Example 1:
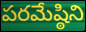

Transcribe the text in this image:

పరమేష్ఠిని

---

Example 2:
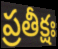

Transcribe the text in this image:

ప్రతీక్షః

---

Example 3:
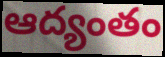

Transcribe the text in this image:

ఆద్యంతం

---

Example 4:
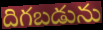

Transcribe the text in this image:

దిగబడును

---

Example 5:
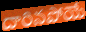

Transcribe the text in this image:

దారినపోయే